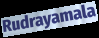
Rudrayamala